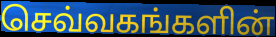
செவ்வகங்களின்